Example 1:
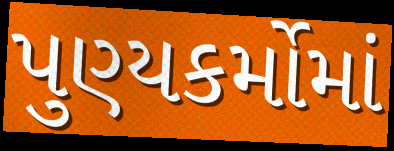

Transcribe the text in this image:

પુણ્યકર્મોમાં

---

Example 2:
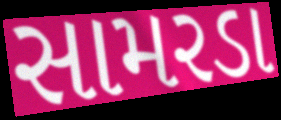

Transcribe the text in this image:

સામરડા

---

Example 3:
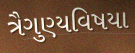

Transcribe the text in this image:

ત્રૈગુણ્યવિષયા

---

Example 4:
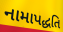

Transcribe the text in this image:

નામાપદ્ધતિ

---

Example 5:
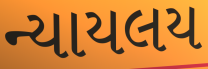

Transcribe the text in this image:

ન્યાયલય